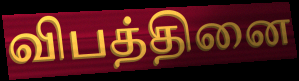
விபத்தினை